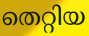
തെറ്റിയ